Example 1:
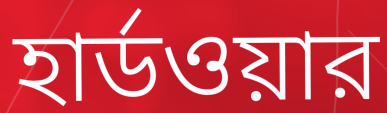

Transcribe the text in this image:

হার্ডওয়ার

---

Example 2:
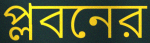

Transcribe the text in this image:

প্লবনের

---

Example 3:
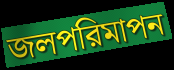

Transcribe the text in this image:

জলপরিমাপন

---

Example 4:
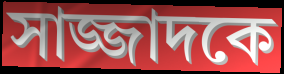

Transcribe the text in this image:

সাজ্জাদকে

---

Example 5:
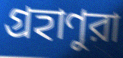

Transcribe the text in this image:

গ্রহাণুরা